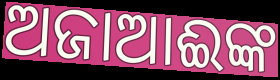
ଅଜାଆଈଙ୍କ